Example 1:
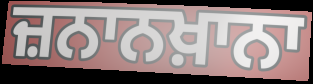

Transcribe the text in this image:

ਜ਼ਨਾਨਖ਼ਾਨਾ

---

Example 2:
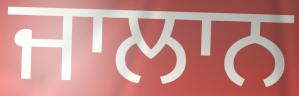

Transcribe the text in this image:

ਜਾਲਾਨ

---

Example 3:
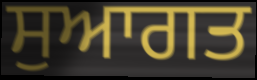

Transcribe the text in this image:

ਸੁਆਗਤ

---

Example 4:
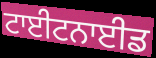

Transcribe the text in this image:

ਟਾਈਟਨਾਈਡ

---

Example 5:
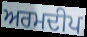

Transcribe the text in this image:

ਅਰਮਦੀਪ